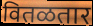
वितळतार